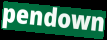
pendown